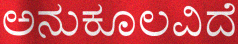
ಅನುಕೂಲವಿದೆ